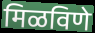
मिळविणे